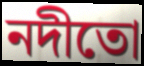
নদীতো